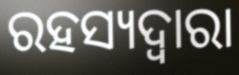
ରହସ୍ୟଦ୍ଵାରା